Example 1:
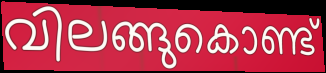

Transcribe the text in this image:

വിലങ്ങുകൊണ്ട്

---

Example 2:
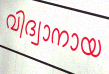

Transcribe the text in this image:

വിദ്വാനായ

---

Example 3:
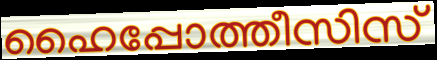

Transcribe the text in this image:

ഹൈപ്പോത്തീസിസ്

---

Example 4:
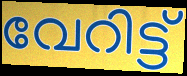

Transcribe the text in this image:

വേറിട്ട്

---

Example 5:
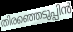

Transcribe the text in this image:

തിരഞ്ഞെടുപ്പിൻ